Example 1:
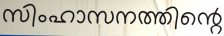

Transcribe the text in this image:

സിംഹാസനത്തിന്റെ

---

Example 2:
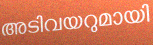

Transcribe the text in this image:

അടിവയറുമായി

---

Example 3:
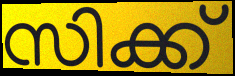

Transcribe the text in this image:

സിക്ക്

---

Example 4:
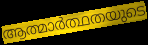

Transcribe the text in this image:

ആത്മാർത്ഥതയുടെ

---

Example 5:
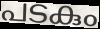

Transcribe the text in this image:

പടകും